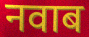
नवाब